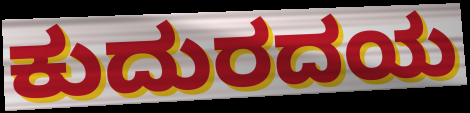
ಕುದುರದಯ